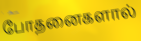
போதனைகளால்